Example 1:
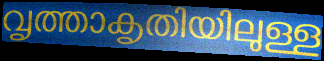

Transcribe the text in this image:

വൃത്താകൃതിയിലുള്ള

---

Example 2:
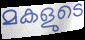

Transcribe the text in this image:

മകളുടെ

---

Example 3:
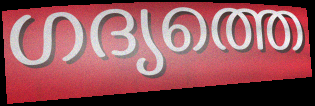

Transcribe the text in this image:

ഗദ്യത്തെ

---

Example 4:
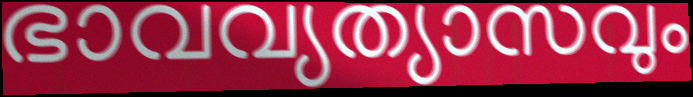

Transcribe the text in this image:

ഭാവവ്യത്യാസവും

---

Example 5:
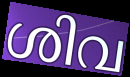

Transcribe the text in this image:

ശിവ